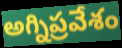
అగ్నిప్రవేశం